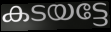
കടയട്ടേ